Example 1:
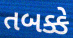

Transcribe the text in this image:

તબક્કે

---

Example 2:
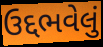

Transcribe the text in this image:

ઉદ્દભવેલું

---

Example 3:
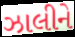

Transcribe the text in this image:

ઝાલીને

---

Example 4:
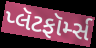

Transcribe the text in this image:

પ્લૅટફૉર્મ્સ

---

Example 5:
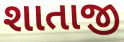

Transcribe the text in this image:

શાતાજી